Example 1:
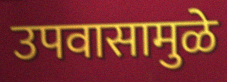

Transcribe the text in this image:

उपवासामुळे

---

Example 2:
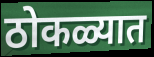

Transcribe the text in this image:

ठोकळ्यात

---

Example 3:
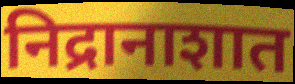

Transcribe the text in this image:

निद्रानाशात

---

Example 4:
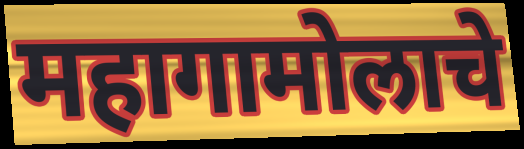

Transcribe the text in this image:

महागामोलाचे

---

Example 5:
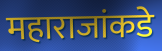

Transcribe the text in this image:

महाराजांकडे